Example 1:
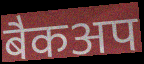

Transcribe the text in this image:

बैकअप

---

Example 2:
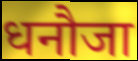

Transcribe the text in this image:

धनौजा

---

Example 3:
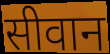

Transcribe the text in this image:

सीवान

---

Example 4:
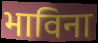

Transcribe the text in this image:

भाविना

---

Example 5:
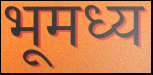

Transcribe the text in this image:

भूमध्य